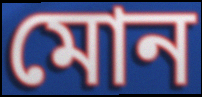
মোন